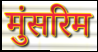
मुंसरिम